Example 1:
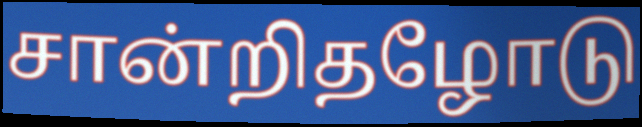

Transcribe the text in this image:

சான்றிதழோடு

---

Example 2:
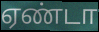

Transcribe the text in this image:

ஏண்டா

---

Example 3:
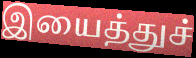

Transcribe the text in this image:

இயைத்துச்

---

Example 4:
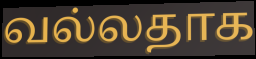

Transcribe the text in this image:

வல்லதாக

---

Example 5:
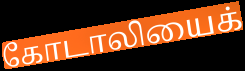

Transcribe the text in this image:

கோடாலியைக்